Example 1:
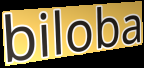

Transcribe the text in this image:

biloba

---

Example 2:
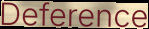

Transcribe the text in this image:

Deference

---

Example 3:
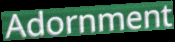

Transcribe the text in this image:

Adornment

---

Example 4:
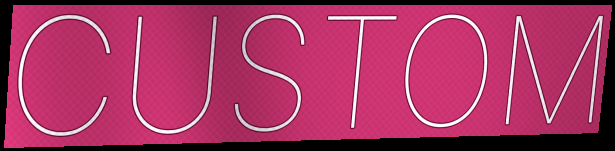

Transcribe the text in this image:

CUSTOM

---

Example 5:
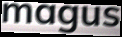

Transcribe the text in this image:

magus